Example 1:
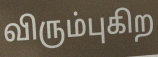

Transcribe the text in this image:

விரும்புகிற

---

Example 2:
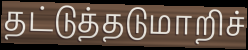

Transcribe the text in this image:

தட்டுத்தடுமாறிச்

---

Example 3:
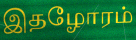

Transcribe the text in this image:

இதழோரம்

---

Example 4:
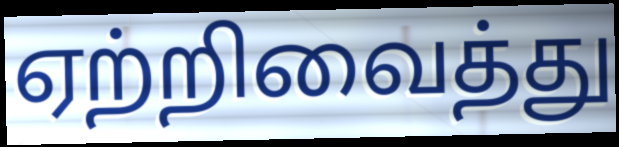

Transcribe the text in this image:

ஏற்றிவைத்து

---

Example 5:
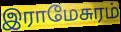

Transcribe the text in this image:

இராமேசுரம்